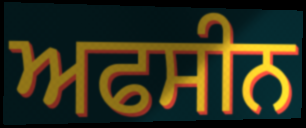
ਅਫਸੀਨ